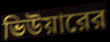
ভিউয়ারের